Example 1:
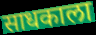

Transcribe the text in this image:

साधकाला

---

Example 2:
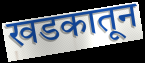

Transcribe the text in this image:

खडकातून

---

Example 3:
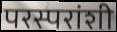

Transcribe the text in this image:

परस्परांशी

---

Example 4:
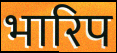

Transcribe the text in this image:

भारिप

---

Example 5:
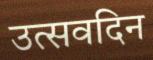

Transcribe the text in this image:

उत्सवदिन